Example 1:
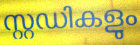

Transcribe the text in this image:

സ്റ്റഡികളും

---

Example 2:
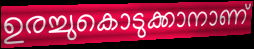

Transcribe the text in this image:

ഉരച്ചുകൊടുക്കാനാണ്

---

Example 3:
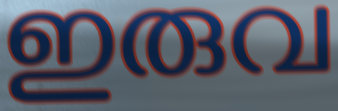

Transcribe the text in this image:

ഇരുവ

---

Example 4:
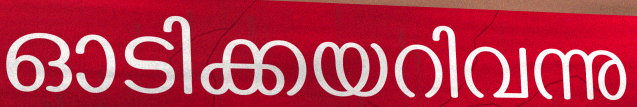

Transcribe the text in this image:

ഓടിക്കയറിവന്നു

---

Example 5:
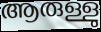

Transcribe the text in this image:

ആരുള്ളു